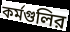
কর্মগুলির